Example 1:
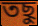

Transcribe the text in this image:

তছু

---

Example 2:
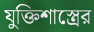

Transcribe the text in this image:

যুক্তিশাস্ত্রের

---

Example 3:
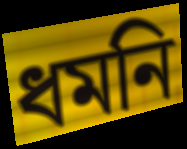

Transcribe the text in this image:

ধমনি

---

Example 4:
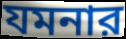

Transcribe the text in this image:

যমনার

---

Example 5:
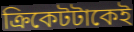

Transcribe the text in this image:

ক্রিকেটটাকেই